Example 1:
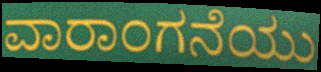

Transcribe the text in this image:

ವಾರಾಂಗನೆಯು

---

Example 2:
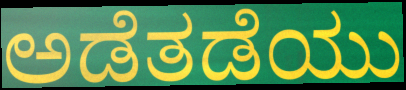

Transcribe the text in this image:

ಅಡೆತಡೆಯು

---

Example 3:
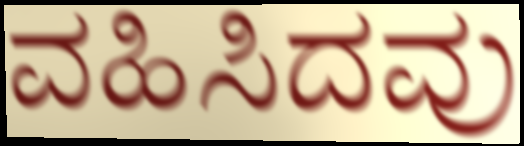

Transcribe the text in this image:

ವಹಿಸಿದವು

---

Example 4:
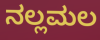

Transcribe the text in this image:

ನಲ್ಲಮಲ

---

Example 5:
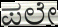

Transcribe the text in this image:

ಪಲೇ